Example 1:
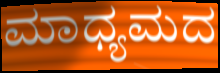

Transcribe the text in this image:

ಮಾಧ್ಯಮದ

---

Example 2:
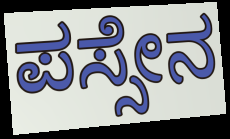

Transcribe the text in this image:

ಪಸ್ಸೇನ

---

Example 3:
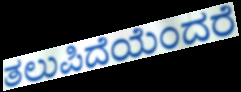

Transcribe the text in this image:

ತಲುಪಿದೆಯೆಂದರೆ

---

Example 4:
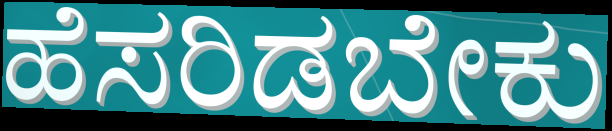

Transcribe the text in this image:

ಹೆಸರಿಡಬೇಕು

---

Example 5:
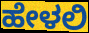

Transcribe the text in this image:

ಹೇಳಲಿ